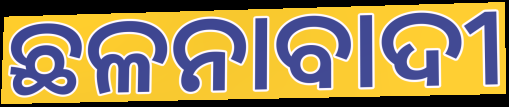
ଛଳନାବାଦୀ